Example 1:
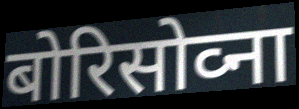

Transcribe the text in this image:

बोरिसोव्ना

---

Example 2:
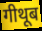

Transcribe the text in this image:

गीथूब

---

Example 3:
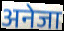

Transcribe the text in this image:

अनेजा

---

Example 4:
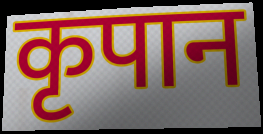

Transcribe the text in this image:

कृपान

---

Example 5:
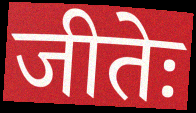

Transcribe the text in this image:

जीतेः